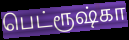
பெட்ரூஷ்கா